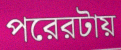
পরেরটায়